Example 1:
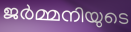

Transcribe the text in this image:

ജർമ്മനിയുടെ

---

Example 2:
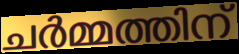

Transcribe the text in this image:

ചർമ്മത്തിന്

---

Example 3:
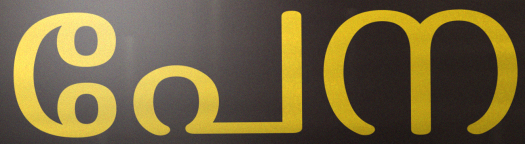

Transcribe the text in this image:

പേന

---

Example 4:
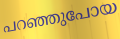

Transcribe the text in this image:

പറഞ്ഞുപോയ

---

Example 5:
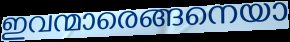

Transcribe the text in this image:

ഇവന്മാരെങ്ങനെയാ